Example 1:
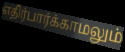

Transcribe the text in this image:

எதிர்பார்க்காமலும்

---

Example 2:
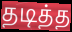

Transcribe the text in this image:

தடித்த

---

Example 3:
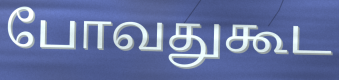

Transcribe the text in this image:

போவதுகூட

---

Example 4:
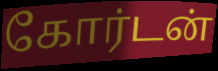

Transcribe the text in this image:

கோர்டன்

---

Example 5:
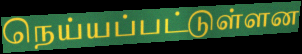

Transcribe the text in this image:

நெய்யப்பட்டுள்ளன